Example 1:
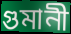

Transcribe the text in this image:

গুমানী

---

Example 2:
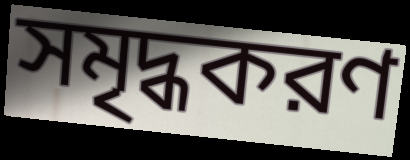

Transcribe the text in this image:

সমৃদ্ধকরণ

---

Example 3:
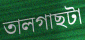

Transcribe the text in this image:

তালগাছটা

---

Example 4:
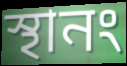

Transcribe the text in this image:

স্থানং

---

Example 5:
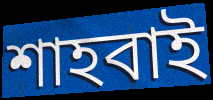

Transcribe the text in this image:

শাহবাই